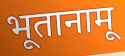
भूतानामू